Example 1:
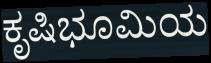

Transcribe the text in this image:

ಕೃಷಿಭೂಮಿಯ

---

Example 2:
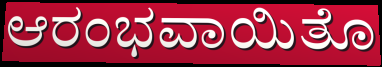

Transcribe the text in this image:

ಆರಂಭವಾಯಿತೊ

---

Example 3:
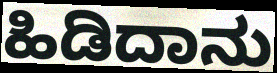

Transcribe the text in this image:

ಹಿಡಿದಾನು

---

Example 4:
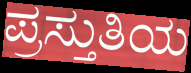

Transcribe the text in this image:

ಪ್ರಸ್ತುತಿಯ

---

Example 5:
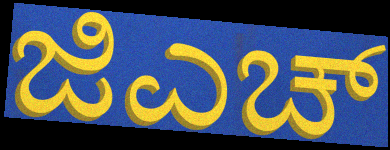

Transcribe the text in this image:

ಜಿಎಚ್